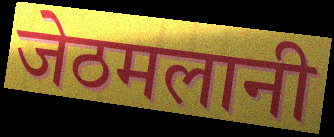
जेठमलानी